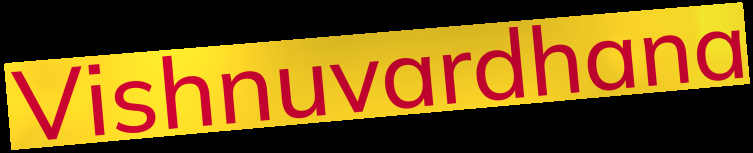
Vishnuvardhana